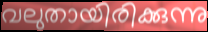
വലുതായിരിക്കുന്നു